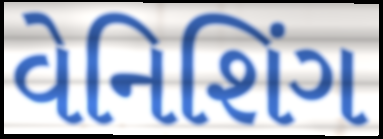
વેનિશિંગ